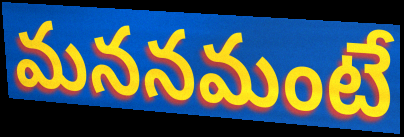
మననమంటే